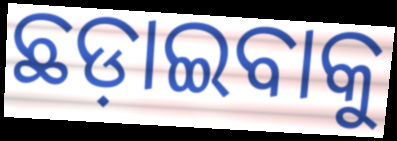
ଛଡ଼ାଇବାକୁ